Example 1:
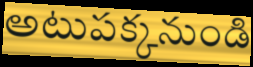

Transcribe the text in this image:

అటుపక్కనుండి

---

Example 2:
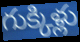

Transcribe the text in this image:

గుక్కిళ్లు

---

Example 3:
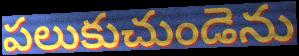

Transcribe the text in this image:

పలుకుచుండెను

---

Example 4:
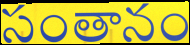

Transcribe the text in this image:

సంతానం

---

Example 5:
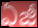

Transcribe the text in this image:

ఏజీ